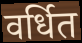
वर्धित